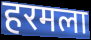
हरमला